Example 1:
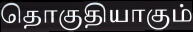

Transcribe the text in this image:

தொகுதியாகும்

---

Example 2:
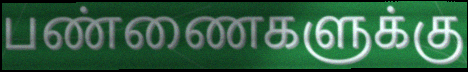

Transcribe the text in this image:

பண்ணைகளுக்கு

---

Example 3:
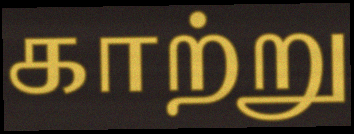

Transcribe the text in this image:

காற்று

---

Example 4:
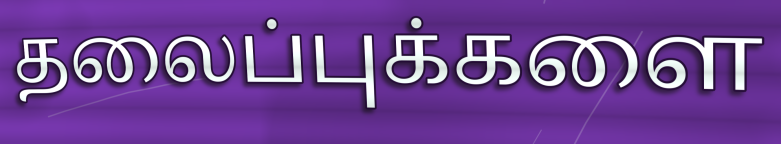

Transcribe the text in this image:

தலைப்புக்களை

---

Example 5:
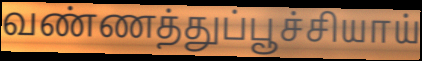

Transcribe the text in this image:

வண்ணத்துப்பூச்சியாய்